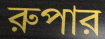
রুপার